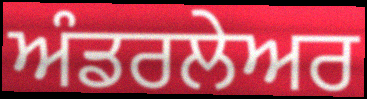
ਅੰਡਰਲੇਅਰ